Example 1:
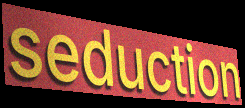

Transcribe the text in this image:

seduction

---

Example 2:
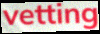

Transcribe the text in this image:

vetting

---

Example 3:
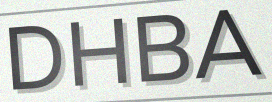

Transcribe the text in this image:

DHBA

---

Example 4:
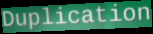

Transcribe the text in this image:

Duplication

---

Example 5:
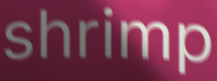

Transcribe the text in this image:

shrimp